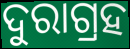
ଦୁରାଗ୍ରହ